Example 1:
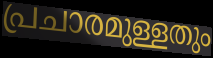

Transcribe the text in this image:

പ്രചാരമുള്ളതും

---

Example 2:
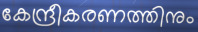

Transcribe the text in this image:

കേന്ദ്രീകരണത്തിനും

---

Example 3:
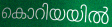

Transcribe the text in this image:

കൊറിയയിൽ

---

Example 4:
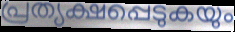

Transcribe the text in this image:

പ്രത്യക്ഷപ്പെടുകയും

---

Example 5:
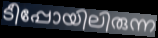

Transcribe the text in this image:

ടീപ്പോയിലിരുന്ന